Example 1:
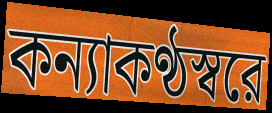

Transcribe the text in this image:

কন্যাকণ্ঠস্বরে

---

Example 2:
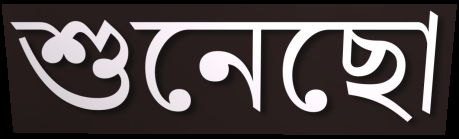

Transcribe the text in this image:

শুনেছো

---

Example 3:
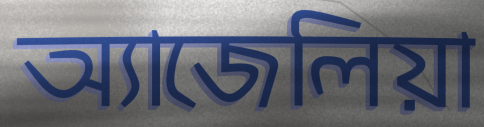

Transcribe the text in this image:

অ্যাজেলিয়া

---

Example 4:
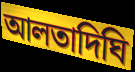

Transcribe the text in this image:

আলতাদিঘি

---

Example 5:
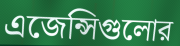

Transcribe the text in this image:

এজেন্সিগুলোর